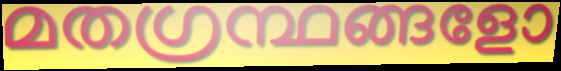
മതഗ്രന്ഥങ്ങളോ